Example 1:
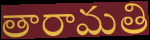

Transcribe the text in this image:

తారామతి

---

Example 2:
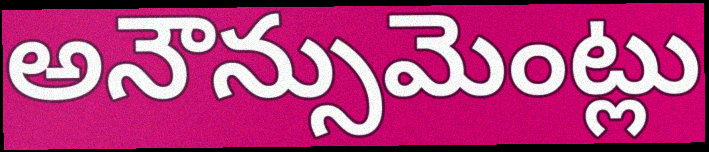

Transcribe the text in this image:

అనౌన్సుమెంట్లు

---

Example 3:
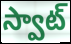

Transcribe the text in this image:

స్వాట్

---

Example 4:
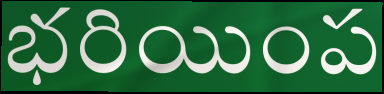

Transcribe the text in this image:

భరియింప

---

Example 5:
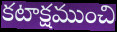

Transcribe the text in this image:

కటాక్షముంచి